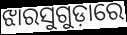
ଝାରସୁଗୁଡ଼ାରେ